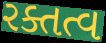
રક્તત્વ